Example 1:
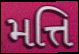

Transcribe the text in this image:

મત્તિ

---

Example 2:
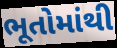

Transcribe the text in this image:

ભૂતોમાંથી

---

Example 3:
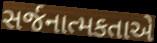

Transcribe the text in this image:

સર્જનાત્મકતાએ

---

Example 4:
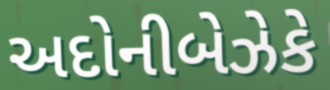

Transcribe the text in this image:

અદોનીબેઝેકે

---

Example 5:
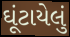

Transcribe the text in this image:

ઘૂંટાયેલું